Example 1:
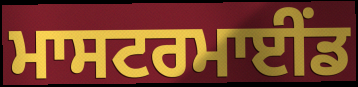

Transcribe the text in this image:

ਮਾਸਟਰਮਾਈੰਡ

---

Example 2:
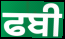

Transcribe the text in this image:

ਫਬੀ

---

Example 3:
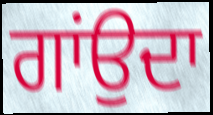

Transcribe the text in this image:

ਗਾਂਉਦਾ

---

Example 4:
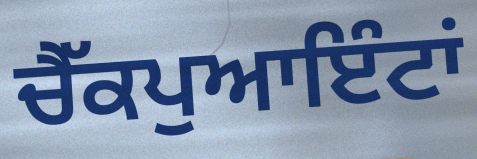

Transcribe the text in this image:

ਚੈੱਕਪੁਆਇੰਟਾਂ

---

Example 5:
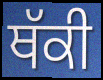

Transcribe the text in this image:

ਥੱਕੀ